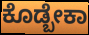
ಕೊಡ್ಬೇಕಾ